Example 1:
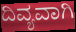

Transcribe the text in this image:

ದಿವ್ಯವಾಗಿ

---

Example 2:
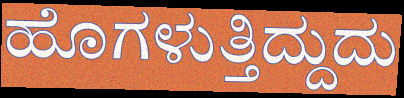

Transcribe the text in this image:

ಹೊಗಳುತ್ತಿದ್ದುದು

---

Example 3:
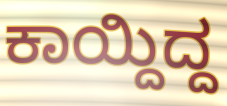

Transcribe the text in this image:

ಕಾಯ್ದಿದ್ದ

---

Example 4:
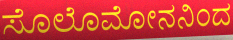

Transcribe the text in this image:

ಸೊಲೊಮೋನನಿಂದ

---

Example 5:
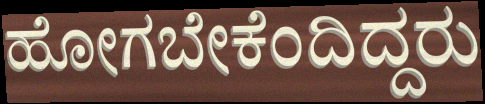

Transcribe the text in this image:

ಹೋಗಬೇಕೆಂದಿದ್ದರು